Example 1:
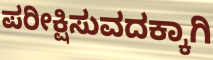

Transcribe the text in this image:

ಪರೀಕ್ಷಿಸುವದಕ್ಕಾಗಿ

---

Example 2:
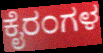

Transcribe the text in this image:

ಕೈರಂಗಳ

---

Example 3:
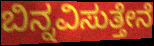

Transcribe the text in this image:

ಬಿನ್ನವಿಸುತ್ತೇನೆ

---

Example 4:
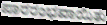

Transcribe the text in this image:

ಪಾರರಂಭವಾಯಿತು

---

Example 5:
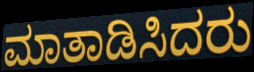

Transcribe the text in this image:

ಮಾತಾಡಿಸಿದರು